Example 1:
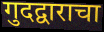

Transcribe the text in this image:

गुदद्वाराचा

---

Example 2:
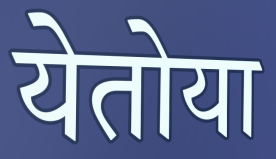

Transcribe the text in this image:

येतोया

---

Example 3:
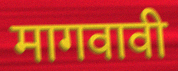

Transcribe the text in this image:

मागवावी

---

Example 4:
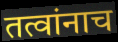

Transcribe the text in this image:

तत्वांनाच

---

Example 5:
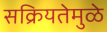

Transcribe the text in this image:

सक्रियतेमुळे